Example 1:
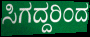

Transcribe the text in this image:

ಸಿಗದ್ದರಿಂದ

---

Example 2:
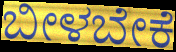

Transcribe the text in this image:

ಬೀಳಬೇಕೆ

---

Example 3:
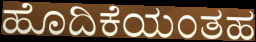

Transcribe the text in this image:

ಹೊದಿಕೆಯಂತಹ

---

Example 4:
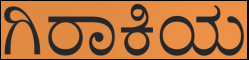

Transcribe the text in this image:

ಗಿರಾಕಿಯ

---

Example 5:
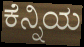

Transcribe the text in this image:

ಕೆನ್ನಿಯ